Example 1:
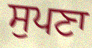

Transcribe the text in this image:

ਸੁਪਣਾ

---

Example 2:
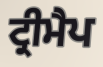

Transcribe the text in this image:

ਟ੍ਰੀਮੈਪ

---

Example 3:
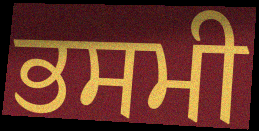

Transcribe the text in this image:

ਭਸਮੀ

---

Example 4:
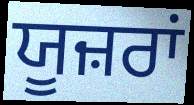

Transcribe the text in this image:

ਯੂਜ਼ਰਾਂ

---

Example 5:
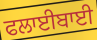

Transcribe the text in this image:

ਫਲਾਈਬਾਈ